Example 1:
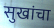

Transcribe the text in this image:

सुखांचा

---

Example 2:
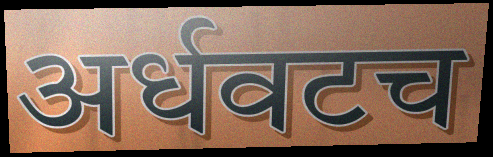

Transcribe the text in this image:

अर्धवटच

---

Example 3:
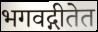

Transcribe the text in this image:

भगवद्गीतेत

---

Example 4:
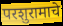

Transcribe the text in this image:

परशुरामाचे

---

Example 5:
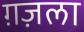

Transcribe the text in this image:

ग़ज़ला